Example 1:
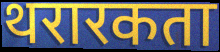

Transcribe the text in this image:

थरारकता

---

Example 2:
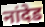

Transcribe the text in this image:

नांदेड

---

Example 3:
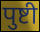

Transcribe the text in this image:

पुष्टी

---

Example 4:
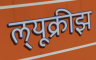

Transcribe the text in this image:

ल्यूक्रीझ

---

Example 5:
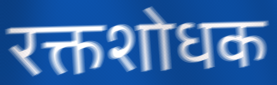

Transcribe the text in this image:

रक्तशोधक